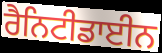
ਰੈਨਿਟੀਡਾਈਨ